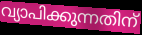
വ്യാപിക്കുന്നതിന്